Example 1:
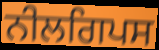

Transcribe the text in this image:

ਨੀਲਗਿਪਸ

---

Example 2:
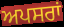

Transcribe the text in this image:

ਅਪਸਰਾਂ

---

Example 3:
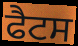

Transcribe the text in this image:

ਫੈਟਸ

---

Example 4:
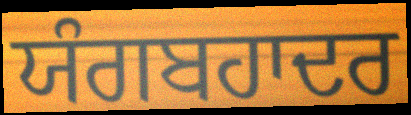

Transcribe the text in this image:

ਯੰਗਬਹਾਦਰ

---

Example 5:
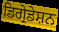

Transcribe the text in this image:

ਡਿਗ੍ਰੇਡੇਸ਼ਨ